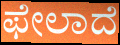
ಫೇಲಾದೆ